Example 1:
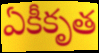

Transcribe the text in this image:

ఏకీకృత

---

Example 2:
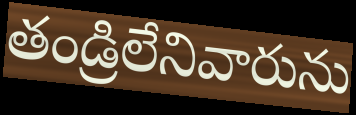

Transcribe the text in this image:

తండ్రిలేనివారును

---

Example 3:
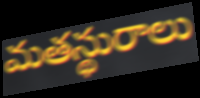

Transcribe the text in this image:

మతస్థురాలు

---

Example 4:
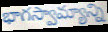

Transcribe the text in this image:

భాగస్వామ్యాన్ని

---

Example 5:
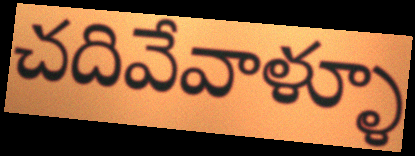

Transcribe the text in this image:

చదివేవాళ్ళూ